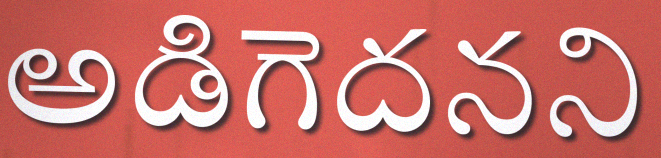
అడిగెదనని